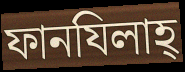
ফানযিলাহ্